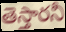
తెస్తారనీ